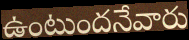
ఉంటుందనేవారు